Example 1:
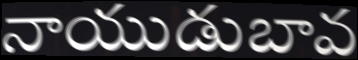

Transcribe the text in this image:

నాయుడుబావ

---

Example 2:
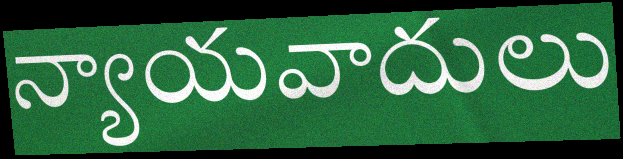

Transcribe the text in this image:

న్యాయవాదులు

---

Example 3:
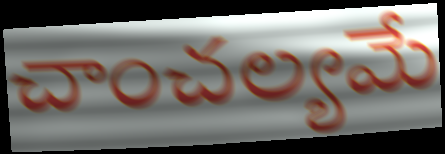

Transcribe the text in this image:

చాంచల్యమే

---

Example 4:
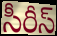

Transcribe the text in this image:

సీరీస్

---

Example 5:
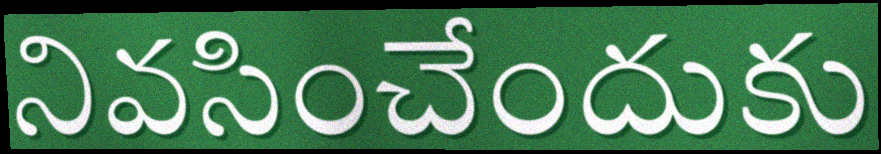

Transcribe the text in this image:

నివసించేందుకు